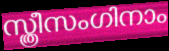
സ്ത്രീസംഗിനാം